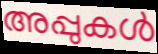
അപ്പുകൾ